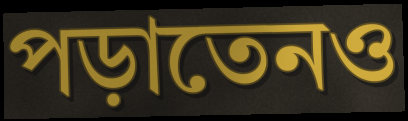
পড়াতেনও